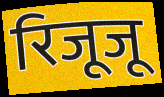
रिजूजू